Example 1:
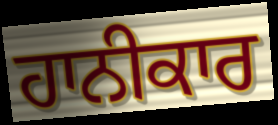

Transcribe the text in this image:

ਹਾਨੀਕਾਰ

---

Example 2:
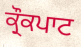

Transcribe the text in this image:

ਕ੍ਰੌਕਪਾਟ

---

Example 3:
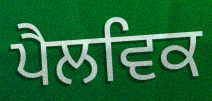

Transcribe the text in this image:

ਪੈਲਵਿਕ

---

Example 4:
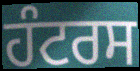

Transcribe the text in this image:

ਹੰਟਰਸ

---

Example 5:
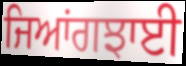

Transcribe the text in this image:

ਜਿਆਂਗਝਾਈ